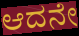
ಆದನೇ